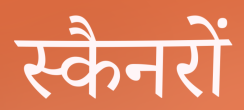
स्कैनरों